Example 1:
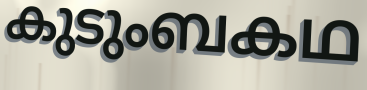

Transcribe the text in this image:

കുടുംബകഥ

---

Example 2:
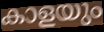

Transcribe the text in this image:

കാളയും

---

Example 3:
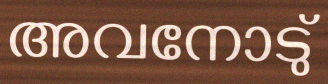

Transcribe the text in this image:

അവനോടു്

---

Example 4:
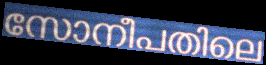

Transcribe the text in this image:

സോനീപതിലെ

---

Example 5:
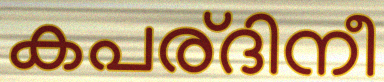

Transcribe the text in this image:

കപര്ദിനീ